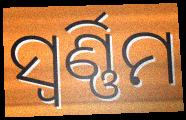
ସ୍ୱର୍ଣ୍ଣିମ